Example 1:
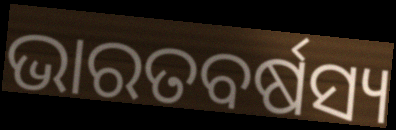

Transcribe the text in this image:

ଭାରତବର୍ଷସ୍ୟ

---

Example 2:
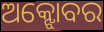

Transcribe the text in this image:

ଅକ୍ଝୋବର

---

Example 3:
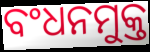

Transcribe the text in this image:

ବଂଧନମୁକ୍ତ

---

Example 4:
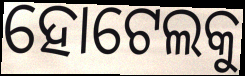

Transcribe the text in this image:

ହୋଟେଲକୁ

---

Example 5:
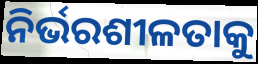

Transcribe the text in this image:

ନିର୍ଭରଶୀଳତାକୁ